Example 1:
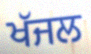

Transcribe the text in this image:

ਖੱਜਲ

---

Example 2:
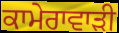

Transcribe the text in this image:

ਕਾਮੇਰਾਵਾੜੀ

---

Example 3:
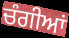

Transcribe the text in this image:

ਚੰਗੀਆਂ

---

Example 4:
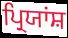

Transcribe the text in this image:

ਪ੍ਰਿਯਾਂਸ਼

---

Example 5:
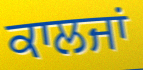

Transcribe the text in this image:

ਕਾਲਜਾਂ